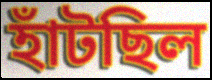
হাঁটছিল